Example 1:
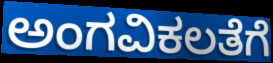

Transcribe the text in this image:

ಅಂಗವಿಕಲತೆಗೆ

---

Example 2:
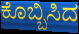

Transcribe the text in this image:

ಕೊಬ್ಬಿಸಿದ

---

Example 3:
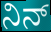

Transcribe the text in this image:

ನಿನ್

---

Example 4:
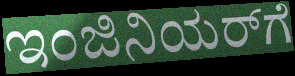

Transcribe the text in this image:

ಇಂಜಿನಿಯರ್‌ಗೆ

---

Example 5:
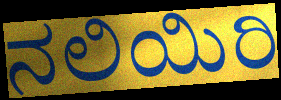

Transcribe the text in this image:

ನಲಿಯಿರಿ